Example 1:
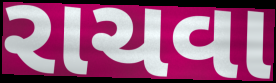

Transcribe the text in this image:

રાચવા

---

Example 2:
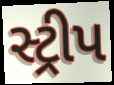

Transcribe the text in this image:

સ્ટ્રીપ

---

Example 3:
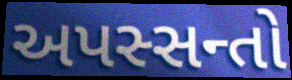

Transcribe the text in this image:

અપસ્સન્તો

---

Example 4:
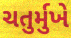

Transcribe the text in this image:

ચતુર્મુખે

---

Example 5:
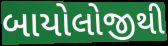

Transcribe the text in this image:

બાયોલોજીથી